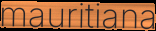
mauritiana